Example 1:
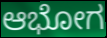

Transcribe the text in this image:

ಆಭೋಗ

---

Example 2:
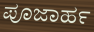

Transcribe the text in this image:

ಪೂಜಾರ್ಹ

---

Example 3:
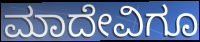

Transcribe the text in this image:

ಮಾದೇವಿಗೂ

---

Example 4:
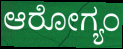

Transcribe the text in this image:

ಆರೋಗ್ಯಂ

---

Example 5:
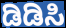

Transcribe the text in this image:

ಡಿಡಿಸಿ